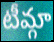
టీమ్గా